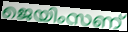
ജെയിംസണ്